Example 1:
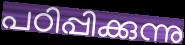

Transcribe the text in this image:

പഠിപ്പിക്കുന്നു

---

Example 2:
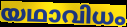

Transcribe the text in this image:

യഥാവിധം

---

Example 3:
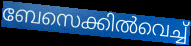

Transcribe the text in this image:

ബേസെക്കിൽവെച്ച്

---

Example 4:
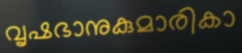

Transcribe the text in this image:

വൃഷഭാനുകുമാരികാ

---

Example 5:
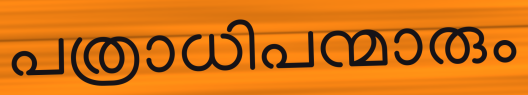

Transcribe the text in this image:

പത്രാധിപന്മാരും